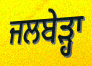
ਜਲਬੇੜ੍ਹਾ